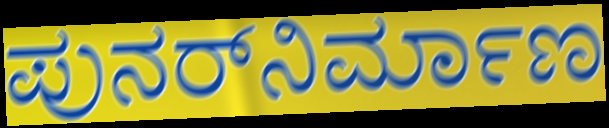
ಪುನರ್‌ನಿರ್ಮಾಣ